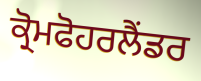
ਕ੍ਰੋਮਫੋਹਰਲੈਂਡਰ